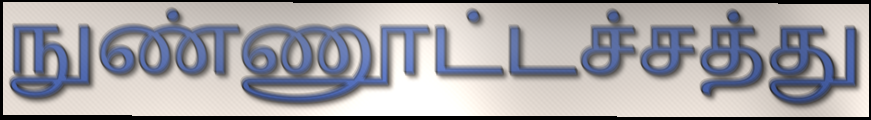
நுண்ணூட்டச்சத்து